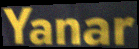
Yanar